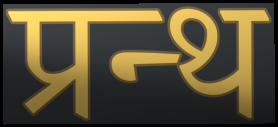
प्रन्थ